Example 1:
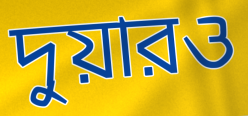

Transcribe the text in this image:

দুয়ারও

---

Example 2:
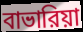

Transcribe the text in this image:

বাভারিয়া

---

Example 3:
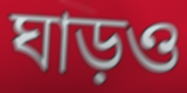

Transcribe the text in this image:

ঘাড়ও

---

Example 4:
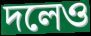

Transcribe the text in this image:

দলেও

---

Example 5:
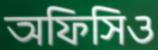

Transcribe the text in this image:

অফিসিও